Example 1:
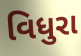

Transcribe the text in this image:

વિધુરા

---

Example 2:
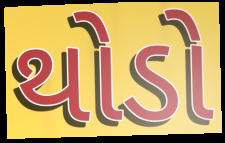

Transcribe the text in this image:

થોડો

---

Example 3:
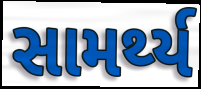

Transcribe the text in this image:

સામર્થ્ય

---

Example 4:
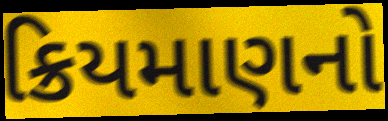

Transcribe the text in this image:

ક્રિયમાણનો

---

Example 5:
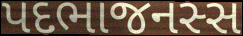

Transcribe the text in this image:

પદભાજનસ્સ